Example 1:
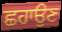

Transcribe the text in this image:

ਛਹਾਉਣ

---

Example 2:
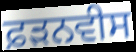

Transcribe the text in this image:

ਫ਼ੜਨਵੀਸ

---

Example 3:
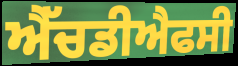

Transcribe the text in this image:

ਐੱਚਡੀਐਫਸੀ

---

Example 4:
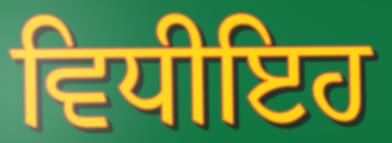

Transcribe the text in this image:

ਵਿਧੀਇਹ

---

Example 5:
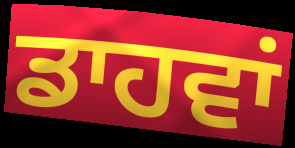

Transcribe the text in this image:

ਡਾਹਵਾਂ